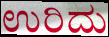
ಉರಿದು